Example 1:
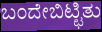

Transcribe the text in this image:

ಬಂದೇಬಿಟ್ಟಿತು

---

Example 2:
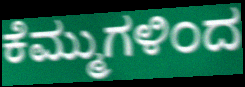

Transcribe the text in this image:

ಕೆಮ್ಮುಗಳಿಂದ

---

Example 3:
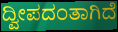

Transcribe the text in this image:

ದ್ವೀಪದಂತಾಗಿದೆ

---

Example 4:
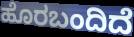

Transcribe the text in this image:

ಹೊರಬಂದಿದೆ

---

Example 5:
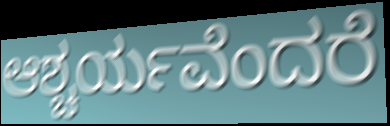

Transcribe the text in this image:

ಆಶ್ಚರ್ಯವೆಂದರೆ